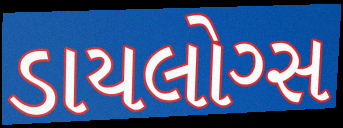
ડાયલોગ્સ